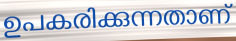
ഉപകരിക്കുന്നതാണ്